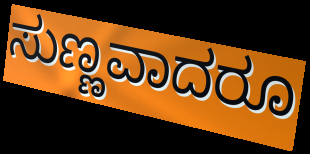
ಸುಣ್ಣವಾದರೂ